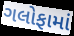
ગલોફામાં